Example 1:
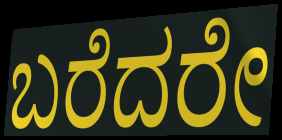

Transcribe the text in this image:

ಬರೆದರೇ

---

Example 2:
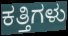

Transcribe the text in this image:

ಕತ್ತಿಗಳು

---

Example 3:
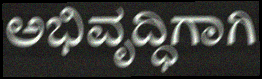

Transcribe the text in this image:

ಅಭಿವೃದ್ಧಿಗಾಗಿ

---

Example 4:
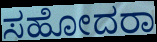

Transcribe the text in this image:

ಸಹೋದರಾ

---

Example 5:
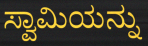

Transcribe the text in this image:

ಸ್ವಾಮಿಯನ್ನು